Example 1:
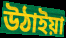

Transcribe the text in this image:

উঠাইয়া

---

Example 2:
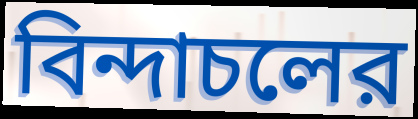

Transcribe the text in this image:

বিন্দাচলের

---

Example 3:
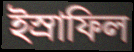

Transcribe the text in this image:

ইস্রাফিল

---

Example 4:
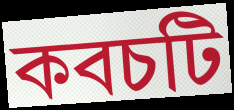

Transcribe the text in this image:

কবচটি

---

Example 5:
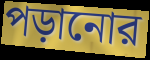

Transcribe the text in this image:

পড়ানোর